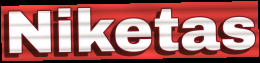
Niketas